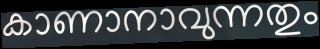
കാണാനാവുന്നതും